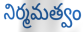
నిర్మమత్వం